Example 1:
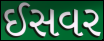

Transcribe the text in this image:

ઈસવર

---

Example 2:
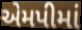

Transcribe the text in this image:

એમપીમાં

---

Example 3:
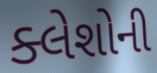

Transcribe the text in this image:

ક્લેશોની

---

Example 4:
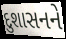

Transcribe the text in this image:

દુશાસનને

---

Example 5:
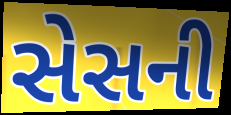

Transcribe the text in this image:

સેસની